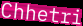
Chhetri